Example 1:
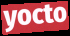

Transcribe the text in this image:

yocto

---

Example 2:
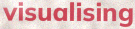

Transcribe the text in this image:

visualising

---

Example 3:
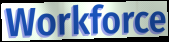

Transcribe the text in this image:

Workforce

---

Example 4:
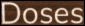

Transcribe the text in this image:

Doses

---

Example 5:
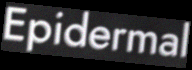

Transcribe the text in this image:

Epidermal